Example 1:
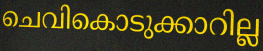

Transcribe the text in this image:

ചെവികൊടുക്കാറില്ല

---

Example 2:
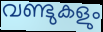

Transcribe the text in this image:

വണ്ടുകളും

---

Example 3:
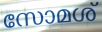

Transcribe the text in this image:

സോമശ്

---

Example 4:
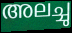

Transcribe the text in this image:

അലച്ചു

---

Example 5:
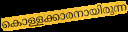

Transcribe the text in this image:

കൊള്ളക്കാരനായിരുന്ന